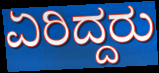
ಏರಿದ್ದರು